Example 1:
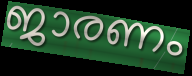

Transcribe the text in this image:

ജാരണം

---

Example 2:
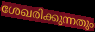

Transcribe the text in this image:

ശേഖരിക്കുന്നതും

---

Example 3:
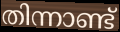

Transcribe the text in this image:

തിന്നാണ്ട്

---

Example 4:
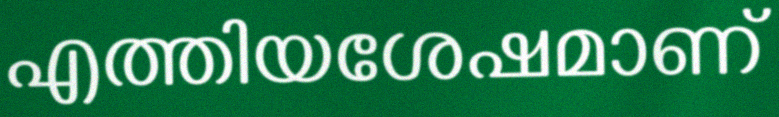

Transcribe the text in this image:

എത്തിയശേഷമാണ്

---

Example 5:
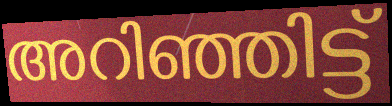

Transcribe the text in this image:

അറിഞ്ഞിട്ട്